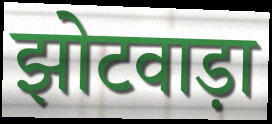
झोटवाड़ा